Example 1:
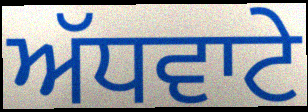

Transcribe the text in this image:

ਅੱਧਵਾਟੇ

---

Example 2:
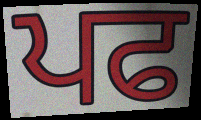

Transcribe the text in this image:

ਪਫ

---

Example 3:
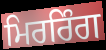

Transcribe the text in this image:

ਮਿਰਰਿੰਗ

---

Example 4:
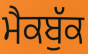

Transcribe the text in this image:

ਮੈਕਬੁੱਕ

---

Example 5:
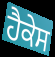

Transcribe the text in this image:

ਹੈਕੇਸ